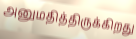
அனுமதித்திருக்கிறது